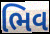
ભિવ